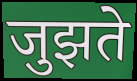
जुझते